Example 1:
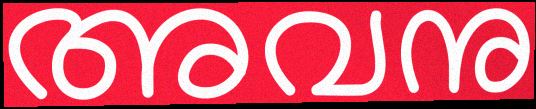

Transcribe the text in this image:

അവനു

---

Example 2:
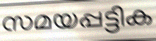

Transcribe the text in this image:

സമയപ്പട്ടിക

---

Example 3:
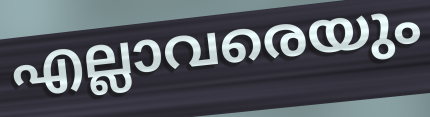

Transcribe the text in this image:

എല്ലാവരെയും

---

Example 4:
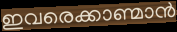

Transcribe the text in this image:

ഇവരെക്കാണ്മാൻ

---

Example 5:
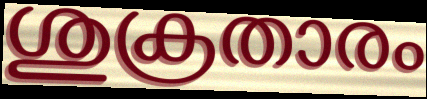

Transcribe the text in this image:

ശുക്രതാരം